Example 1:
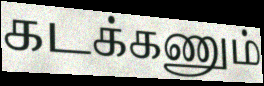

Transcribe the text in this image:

கடக்கணும்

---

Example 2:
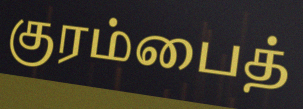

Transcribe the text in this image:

குரம்பைத்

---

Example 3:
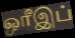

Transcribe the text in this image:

ஒரீஇப்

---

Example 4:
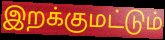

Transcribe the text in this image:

இறக்குமட்டும்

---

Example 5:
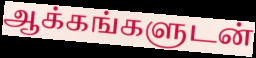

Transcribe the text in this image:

ஆக்கங்களுடன்